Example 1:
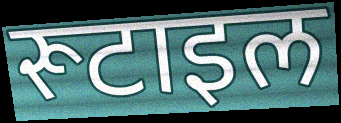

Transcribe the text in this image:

रूटाइल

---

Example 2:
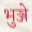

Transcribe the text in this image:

भुञ्जे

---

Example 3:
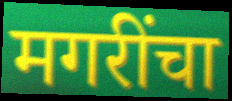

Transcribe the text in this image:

मगरींचा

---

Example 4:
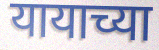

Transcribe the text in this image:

यायाच्या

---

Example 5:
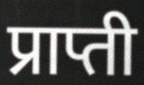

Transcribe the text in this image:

प्राप्ती